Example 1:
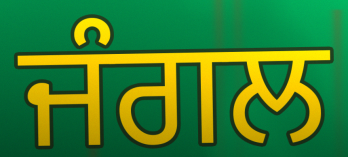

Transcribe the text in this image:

ਜੰਗਲ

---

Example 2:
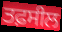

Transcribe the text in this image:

ਤਫ਼ਸੀਲ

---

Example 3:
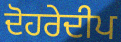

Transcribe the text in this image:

ਦੋਹਰੇਦੀਪ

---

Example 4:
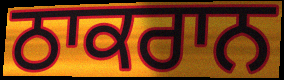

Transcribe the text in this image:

ਠਾਕਰਾਨ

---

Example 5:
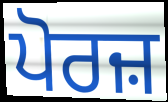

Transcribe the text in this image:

ਪੋਰਜ਼